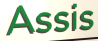
Assis